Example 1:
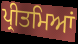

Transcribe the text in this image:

ਪ੍ਰੀਤਮਿਆਂ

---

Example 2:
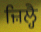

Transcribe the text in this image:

ਜ਼ਿਲ੍ਹੈ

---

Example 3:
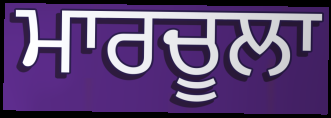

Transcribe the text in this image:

ਮਾਰਚੂਲਾ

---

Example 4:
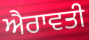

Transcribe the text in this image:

ਐਰਾਵਤੀ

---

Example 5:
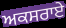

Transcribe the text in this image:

ਅਕਸਰਾਏ